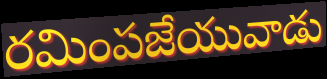
రమింపజేయువాడు